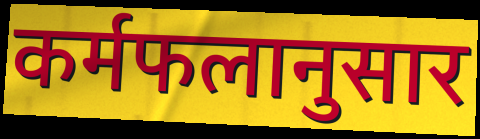
कर्मफलानुसार